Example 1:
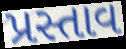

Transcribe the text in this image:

પ્રસ્તાવ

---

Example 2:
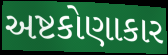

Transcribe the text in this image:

અષ્ટકોણાકાર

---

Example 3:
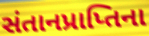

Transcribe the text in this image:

સંતાનપ્રાપ્તિના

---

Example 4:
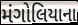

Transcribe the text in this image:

મંગોલિયાના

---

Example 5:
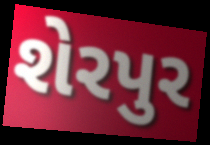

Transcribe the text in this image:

શેરપુર